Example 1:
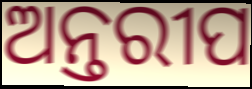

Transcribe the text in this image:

ଅନ୍ତରୀପ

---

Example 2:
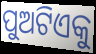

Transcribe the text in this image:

ପୁଅଟିଏକୁ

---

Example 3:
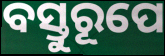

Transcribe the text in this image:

ବସ୍ତୁରୂପେ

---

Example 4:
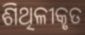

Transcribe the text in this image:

ଶିଥିଳୀକୃତ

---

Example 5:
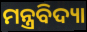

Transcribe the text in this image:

ମନ୍ତ୍ରବିଦ୍ୟା